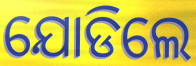
ଯୋଡିଲେ